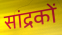
सांद्रकों